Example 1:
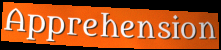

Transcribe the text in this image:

Apprehension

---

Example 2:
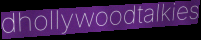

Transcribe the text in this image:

dhollywoodtalkies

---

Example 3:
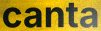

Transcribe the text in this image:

canta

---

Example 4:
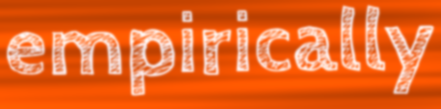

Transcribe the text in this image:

empirically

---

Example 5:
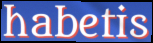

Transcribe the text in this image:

habetis